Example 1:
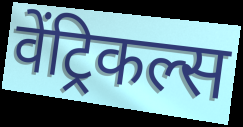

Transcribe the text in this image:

वेंट्रिकल्स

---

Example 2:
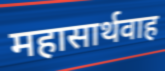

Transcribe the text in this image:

महासार्थवाह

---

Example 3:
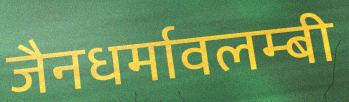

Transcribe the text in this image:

जैनधर्मावलम्बी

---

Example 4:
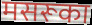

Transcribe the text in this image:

मसरूका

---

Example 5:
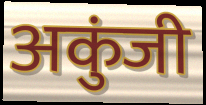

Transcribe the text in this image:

अकुंजी